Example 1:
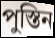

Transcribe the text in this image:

পুস্তিন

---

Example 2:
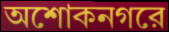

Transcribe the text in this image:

অশোকনগরে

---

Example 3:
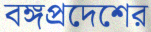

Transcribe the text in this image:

বঙ্গপ্রদেশের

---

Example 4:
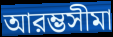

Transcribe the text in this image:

আরম্ভসীমা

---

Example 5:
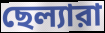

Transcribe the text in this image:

ছেল্যারা